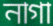
নাগা